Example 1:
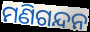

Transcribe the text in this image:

ମଣିଗନ୍ଦନ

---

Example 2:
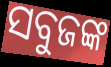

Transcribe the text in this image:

ସବୁଜଙ୍କ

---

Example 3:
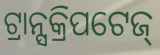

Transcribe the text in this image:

ଟ୍ରାନ୍ସକ୍ରିପଟେଜ୍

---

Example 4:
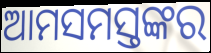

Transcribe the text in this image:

ଆମସମସ୍ତଙ୍କର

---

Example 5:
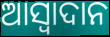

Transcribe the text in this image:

ଆସ୍ୱାଦାନ